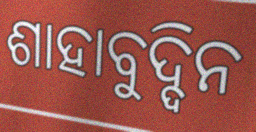
ଶାହାବୁଦ୍ଦିନ